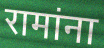
रामांना